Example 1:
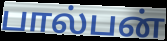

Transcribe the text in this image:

பால்பன்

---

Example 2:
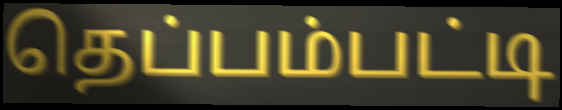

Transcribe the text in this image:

தெப்பம்பட்டி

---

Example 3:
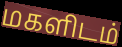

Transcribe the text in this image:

மகளிடம்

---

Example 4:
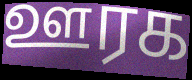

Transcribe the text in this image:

ஊரக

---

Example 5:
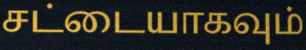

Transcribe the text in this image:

சட்டையாகவும்